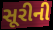
સૂરીની